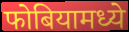
फोबियामध्ये